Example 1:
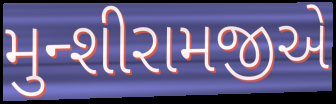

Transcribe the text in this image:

મુન્શીરામજીએ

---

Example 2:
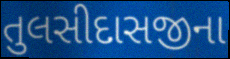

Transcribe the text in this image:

તુલસીદાસજીના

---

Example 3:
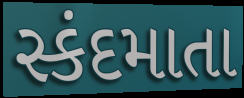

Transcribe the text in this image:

સ્કંદમાતા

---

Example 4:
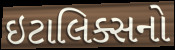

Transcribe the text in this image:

ઇટાલિક્સનો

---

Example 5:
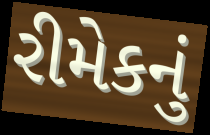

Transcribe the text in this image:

રીમેકનું